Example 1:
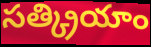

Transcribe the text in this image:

సత్క్రియాం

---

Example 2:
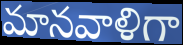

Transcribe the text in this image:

మానవాళిగా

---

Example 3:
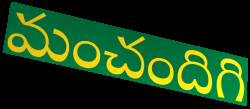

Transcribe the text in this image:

మంచందిగి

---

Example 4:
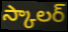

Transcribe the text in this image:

స్కాలర్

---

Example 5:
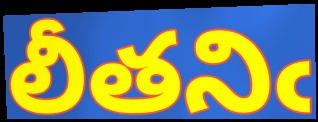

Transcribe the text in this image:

లీతనిఁ